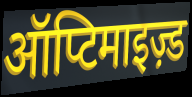
ऑप्टिमाइज़्ड